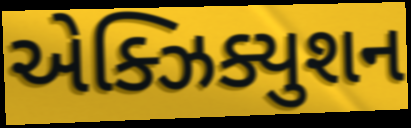
એક્ઝિક્યુશન